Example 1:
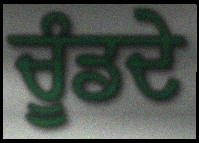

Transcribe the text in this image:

ਚੂੰਡਦੇ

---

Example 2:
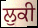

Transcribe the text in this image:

ਲੁਕੀ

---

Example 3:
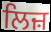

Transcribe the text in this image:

ਲਿਜ਼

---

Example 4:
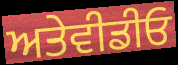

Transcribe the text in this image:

ਅਤੇਵੀਡੀਓ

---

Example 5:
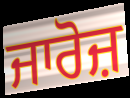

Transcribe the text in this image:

ਜਾਰੋਜ਼